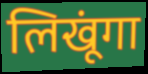
लिखूंगा